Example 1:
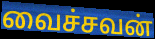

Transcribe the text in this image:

வைச்சவன்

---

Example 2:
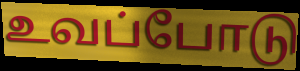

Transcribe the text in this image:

உவப்போடு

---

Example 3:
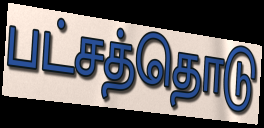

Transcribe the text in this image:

பட்சத்தொடு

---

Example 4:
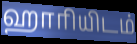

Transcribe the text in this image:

ஹாரியிடம்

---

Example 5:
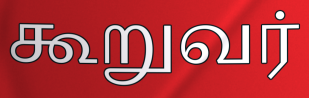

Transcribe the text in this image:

கூறுவர்